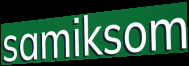
samiksom